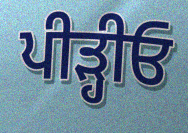
ਪੀੜ੍ਹੀਓ